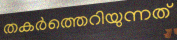
തകർത്തെറിയുന്നത്